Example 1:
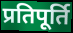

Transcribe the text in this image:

प्रतिपूर्ति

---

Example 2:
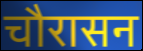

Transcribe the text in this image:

चौरासन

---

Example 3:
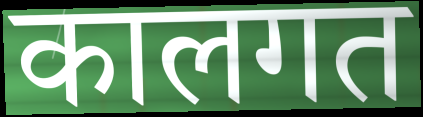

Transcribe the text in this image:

कालगत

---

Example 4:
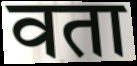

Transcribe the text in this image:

वता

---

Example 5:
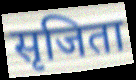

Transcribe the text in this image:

सृजिता